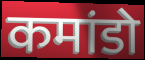
कमांडो